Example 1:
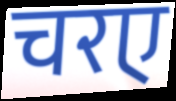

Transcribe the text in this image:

चरए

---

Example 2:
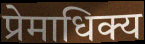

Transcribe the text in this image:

प्रेमाधिक्य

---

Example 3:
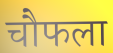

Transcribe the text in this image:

चौफला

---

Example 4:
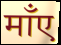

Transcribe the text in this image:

माँए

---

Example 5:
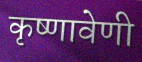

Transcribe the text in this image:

कृष्णावेणी